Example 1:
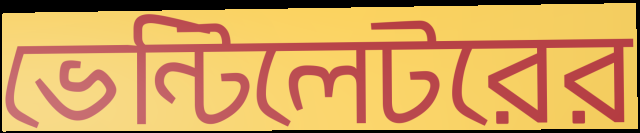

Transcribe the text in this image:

ভেন্টিলেটরের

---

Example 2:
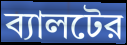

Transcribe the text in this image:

ব্যালটের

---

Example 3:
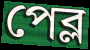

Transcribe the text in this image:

পেব্ল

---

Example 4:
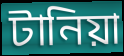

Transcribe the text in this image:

টানিয়া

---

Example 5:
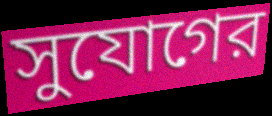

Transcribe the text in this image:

সুযোগের